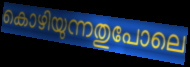
കൊഴിയുന്നതുപോലെ